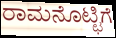
ರಾಮನೊಟ್ಟಿಗೆ